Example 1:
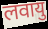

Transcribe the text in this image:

लवायु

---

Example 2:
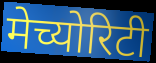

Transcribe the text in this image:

मेच्योरिटी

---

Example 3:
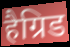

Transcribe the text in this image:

हैग्रिड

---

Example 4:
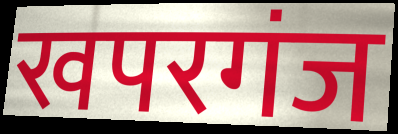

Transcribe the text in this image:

खपरगंज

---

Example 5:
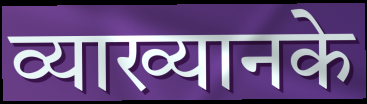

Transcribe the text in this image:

व्याख्यानके